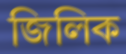
জিলিক